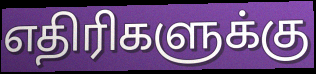
எதிரிகளுக்கு